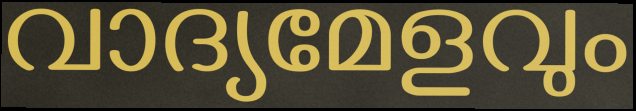
വാദ്യമേളവും